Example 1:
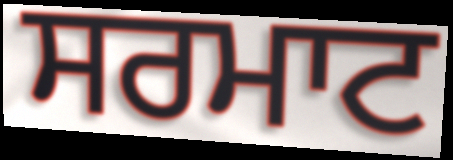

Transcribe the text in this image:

ਸਰਮਾਟ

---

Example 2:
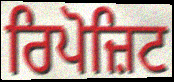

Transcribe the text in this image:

ਰਿਪੋਜ਼ਿਟ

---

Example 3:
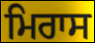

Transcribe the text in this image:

ਮਿਰਾਸ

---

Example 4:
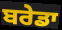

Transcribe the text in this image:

ਬਰੇਡਾ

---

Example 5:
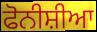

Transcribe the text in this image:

ਫੋਨੀਸ਼ੀਆ